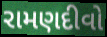
રામણદીવો